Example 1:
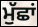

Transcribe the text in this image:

ਮੁੱਛਾਂ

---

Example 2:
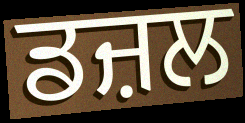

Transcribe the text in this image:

ਡਜ਼ਲ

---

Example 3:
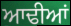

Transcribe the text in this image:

ਆਢੀਆਂ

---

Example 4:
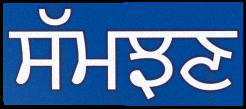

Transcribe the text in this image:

ਸੱਮਝਣ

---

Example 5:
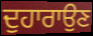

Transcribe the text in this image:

ਦੁਹਾਰਾਉਣ